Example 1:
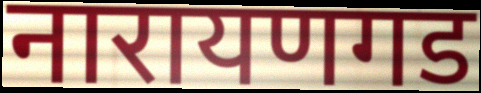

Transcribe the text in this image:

नारायणगड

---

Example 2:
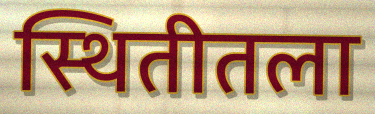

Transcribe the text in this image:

स्थितीतला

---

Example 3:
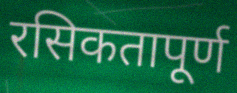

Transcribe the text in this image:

रसिकतापूर्ण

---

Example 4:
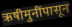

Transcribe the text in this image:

ऋषीमुनींपासून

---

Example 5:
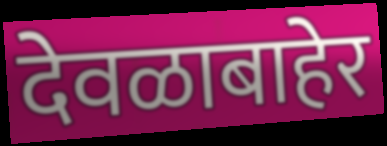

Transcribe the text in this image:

देवळाबाहेर